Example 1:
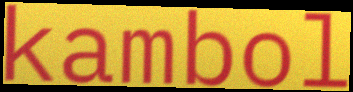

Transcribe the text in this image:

kambol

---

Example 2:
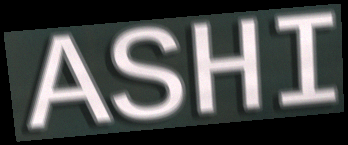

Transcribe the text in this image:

ASHI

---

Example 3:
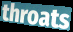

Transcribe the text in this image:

throats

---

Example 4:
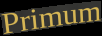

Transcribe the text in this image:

Primum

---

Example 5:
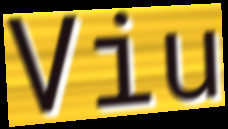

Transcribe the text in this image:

Viu